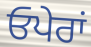
ਓਪੇਰਾਂ